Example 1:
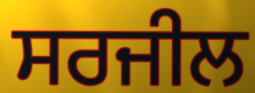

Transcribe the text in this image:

ਸਰਜੀਲ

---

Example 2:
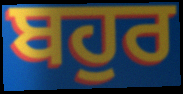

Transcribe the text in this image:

ਬਹੁਰ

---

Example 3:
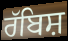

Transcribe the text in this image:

ਰੱਬਿਸ਼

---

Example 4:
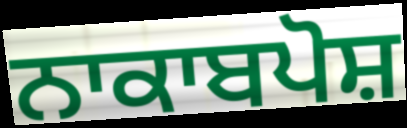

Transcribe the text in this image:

ਨਾਕਾਬਪੋਸ਼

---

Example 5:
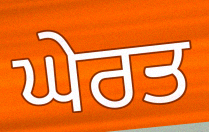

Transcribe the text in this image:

ਘੇਰਤ